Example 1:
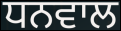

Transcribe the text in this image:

ਧਨਵਾਲ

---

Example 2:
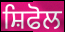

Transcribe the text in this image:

ਸ਼ਿਫੋਲ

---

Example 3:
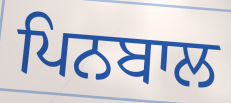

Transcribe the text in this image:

ਪਿਨਬਾਲ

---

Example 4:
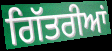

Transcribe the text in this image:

ਗਿੱਤਰੀਆਂ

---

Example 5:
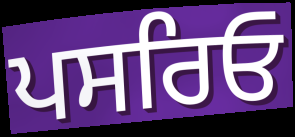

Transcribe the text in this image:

ਪਸਰਿਓ